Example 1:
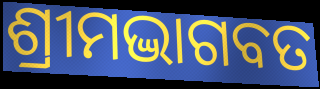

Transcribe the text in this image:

ଶ୍ରୀମଦ୍ଭାଗବତ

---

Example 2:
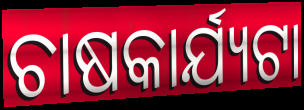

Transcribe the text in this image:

ଚାଷକାର୍ଯ୍ୟଟା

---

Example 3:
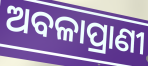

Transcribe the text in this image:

ଅବଳାପ୍ରାଣୀ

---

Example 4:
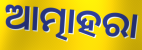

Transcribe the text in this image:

ଆତ୍ମାହରା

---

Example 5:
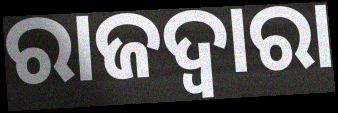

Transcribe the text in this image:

ରାଜଦ୍ୱାରା